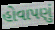
હોવાપણું